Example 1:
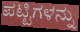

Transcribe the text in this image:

ಪಟ್ಟಿಗಳನ್ನು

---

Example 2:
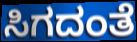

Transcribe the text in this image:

ಸಿಗದಂತೆ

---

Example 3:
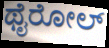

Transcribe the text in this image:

ಥೈರೋಲ್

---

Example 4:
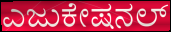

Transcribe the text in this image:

ಎಜುಕೇಷನಲ್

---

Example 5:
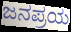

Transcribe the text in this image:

ಜನಪ್ರಯ